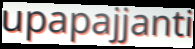
upapajjanti